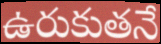
ఉరుకుతనే